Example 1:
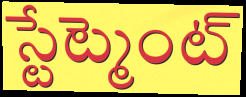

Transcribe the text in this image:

స్టేట్మెంట్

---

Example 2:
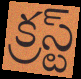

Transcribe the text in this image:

క్రస్ట్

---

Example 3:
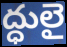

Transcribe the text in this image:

ద్ధులై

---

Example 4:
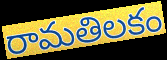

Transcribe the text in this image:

రామతిలకం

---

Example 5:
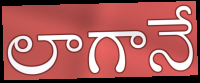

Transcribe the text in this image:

లాగానే